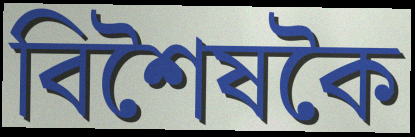
বিশৈষকৈ